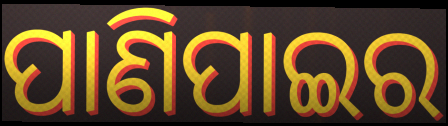
ପାଣିପାଇର